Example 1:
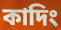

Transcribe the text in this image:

কাদিং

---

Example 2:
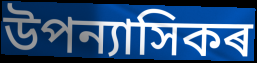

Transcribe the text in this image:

উপন্যাসিকৰ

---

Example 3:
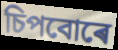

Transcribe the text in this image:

চিপবোৰে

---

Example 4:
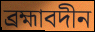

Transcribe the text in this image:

ব্ৰহ্মাবদীন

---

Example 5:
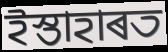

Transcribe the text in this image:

ইস্তাহাৰত